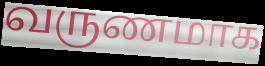
வருணமாக